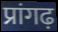
प्रांगढ़